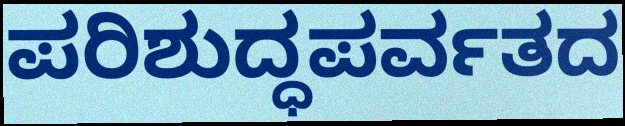
ಪರಿಶುದ್ಧಪರ್ವತದ